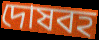
দোষবহ